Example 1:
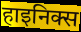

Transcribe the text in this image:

हाइनिक्स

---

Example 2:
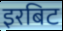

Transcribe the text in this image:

इरबिट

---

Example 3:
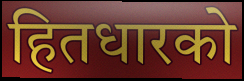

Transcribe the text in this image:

हितधारको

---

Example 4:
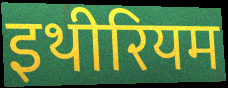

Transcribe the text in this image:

इथीरियम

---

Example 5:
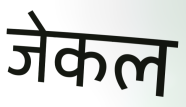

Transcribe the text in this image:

जेकल